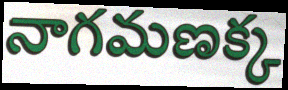
నాగమణక్క